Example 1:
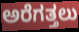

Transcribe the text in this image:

ಅರೆಗತ್ತಲು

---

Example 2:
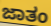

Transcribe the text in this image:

ಜಾತಂ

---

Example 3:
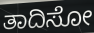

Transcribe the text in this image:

ತಾದಿಸೋ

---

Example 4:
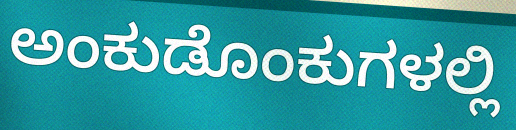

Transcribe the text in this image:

ಅಂಕುಡೊಂಕುಗಳಲ್ಲಿ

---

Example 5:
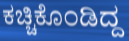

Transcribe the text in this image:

ಕಚ್ಚಿಕೊಂಡಿದ್ದ